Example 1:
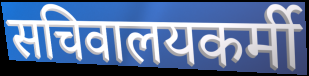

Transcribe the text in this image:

सचिवालयकर्मी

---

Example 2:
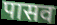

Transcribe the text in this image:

पासव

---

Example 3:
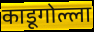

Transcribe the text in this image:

काडूगोल्ला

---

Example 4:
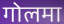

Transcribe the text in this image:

गोलमा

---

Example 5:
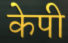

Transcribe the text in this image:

केपी